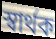
স্বাৰ্থক